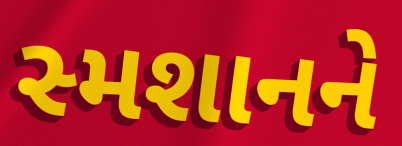
સ્મશાનને